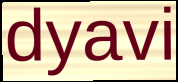
dyavi